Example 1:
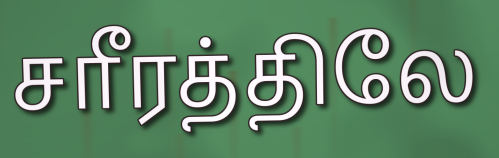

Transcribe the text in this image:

சரீரத்திலே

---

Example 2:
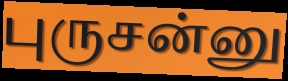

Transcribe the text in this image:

புருசன்னு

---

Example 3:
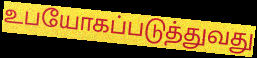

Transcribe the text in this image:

உபயோகப்படுத்துவது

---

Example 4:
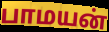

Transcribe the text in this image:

பாமயன்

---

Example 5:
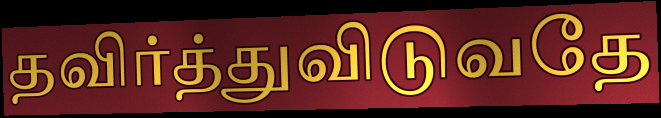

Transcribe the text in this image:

தவிர்த்துவிடுவதே